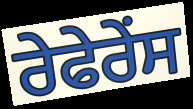
ਰੇਫੇਰੇਂਸ